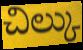
చిల్కు